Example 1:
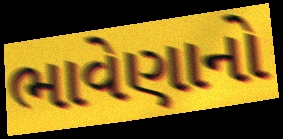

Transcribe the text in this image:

ભાવેણાનો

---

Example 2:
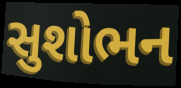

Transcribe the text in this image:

સુશોભન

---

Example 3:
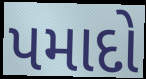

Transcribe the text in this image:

પમાદો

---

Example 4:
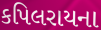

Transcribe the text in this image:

કપિલરાયના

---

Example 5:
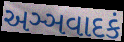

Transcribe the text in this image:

અઞ્ઞવાદકં